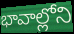
భావాల్లోని